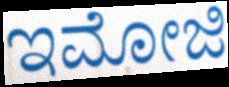
ಇಮೋಜಿ